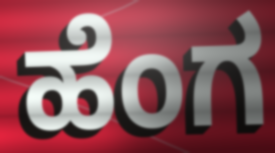
ಹೆಂಗ